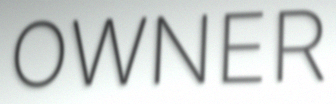
OWNER